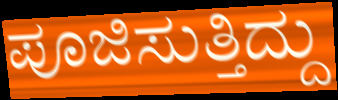
ಪೂಜಿಸುತ್ತಿದ್ದು